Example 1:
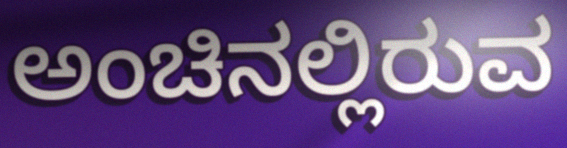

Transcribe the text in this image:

ಅಂಚಿನಲ್ಲಿರುವ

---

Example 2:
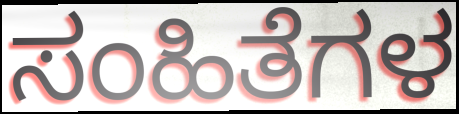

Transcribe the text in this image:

ಸಂಹಿತೆಗಳ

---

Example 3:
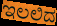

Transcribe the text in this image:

ಇಲಲಿದ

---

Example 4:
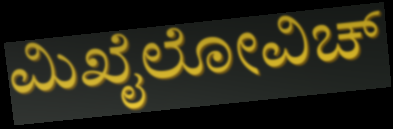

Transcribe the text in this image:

ಮಿಖೈಲೋವಿಚ್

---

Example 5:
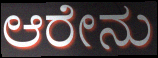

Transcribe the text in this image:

ಆರೇನು